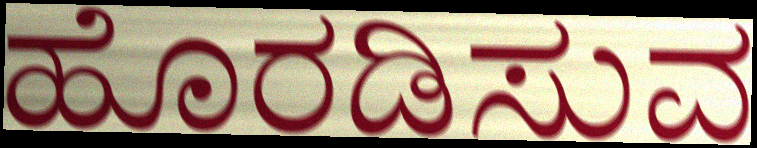
ಹೊರಡಿಸುವ